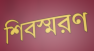
শিবস্মরণ